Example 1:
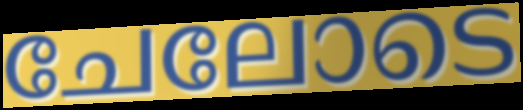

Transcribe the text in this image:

ചേലോടെ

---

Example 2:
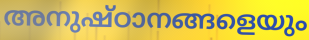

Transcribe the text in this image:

അനുഷ്ഠാനങ്ങളെയും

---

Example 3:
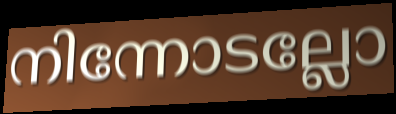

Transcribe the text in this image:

നിന്നോടല്ലോ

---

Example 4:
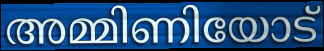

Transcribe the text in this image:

അമ്മിണിയോട്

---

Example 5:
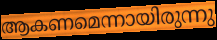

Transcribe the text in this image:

ആകണമെന്നായിരുന്നു